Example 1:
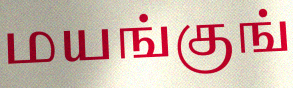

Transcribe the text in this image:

மயங்குங்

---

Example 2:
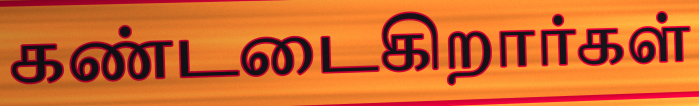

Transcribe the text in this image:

கண்டடைகிறார்கள்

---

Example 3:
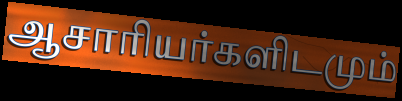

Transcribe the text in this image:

ஆசாரியர்களிடமும்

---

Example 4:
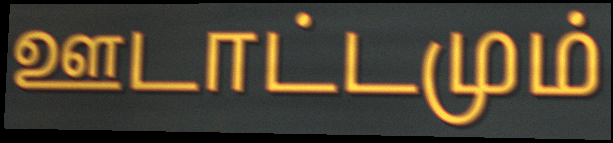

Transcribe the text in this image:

ஊடாட்டமும்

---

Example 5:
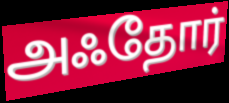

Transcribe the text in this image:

அஃதோர்